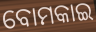
ବୋମକାଇ